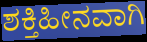
ಶಕ್ತಿಹೀನವಾಗಿ